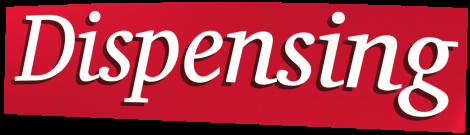
Dispensing